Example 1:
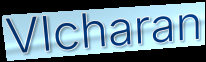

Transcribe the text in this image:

VIcharan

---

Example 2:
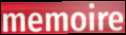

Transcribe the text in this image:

memoire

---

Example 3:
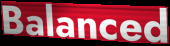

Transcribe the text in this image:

Balanced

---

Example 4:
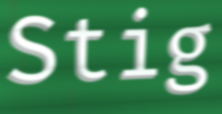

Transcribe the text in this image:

Stig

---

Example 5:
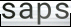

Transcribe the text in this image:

saps